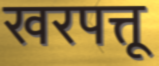
खरपत्तू